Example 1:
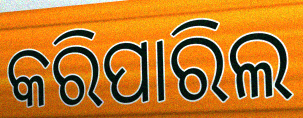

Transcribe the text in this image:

କରିପାରିଲ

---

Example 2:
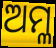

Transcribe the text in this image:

ଅମ୍ଳ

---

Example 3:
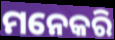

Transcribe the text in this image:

ମନେକରି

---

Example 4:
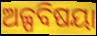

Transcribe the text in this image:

ଅଳ୍ପବିଷୟା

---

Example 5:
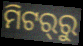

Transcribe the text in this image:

ମିଟର୍‍ରୁ